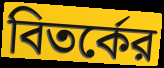
বিতর্কের